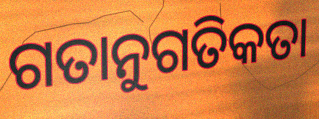
ଗତାନୁଗତିକତା